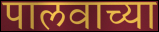
पालवाच्या